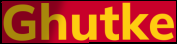
Ghutke